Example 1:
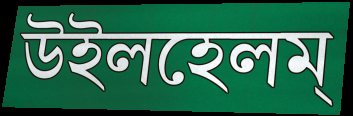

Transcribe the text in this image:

উইলহেলম্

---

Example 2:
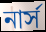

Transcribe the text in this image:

নার্স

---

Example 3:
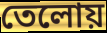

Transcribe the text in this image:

তেলোয়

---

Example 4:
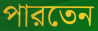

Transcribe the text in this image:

পারতেন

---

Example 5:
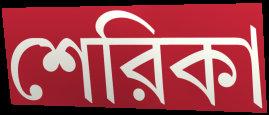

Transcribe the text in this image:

শেরিকা